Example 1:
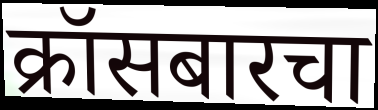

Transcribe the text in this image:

क्रॉसबारचा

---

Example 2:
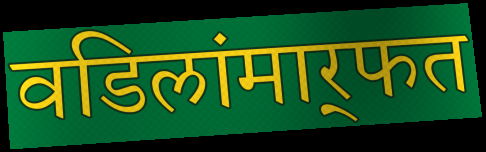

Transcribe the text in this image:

वडिलांमार्फत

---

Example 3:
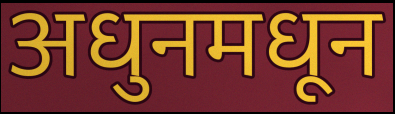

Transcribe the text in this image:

अधुनमधून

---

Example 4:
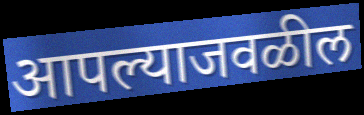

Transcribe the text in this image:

आपल्याजवळील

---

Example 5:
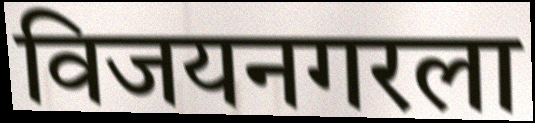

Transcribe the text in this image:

विजयनगरला